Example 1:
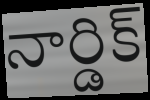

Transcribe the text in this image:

నార్డిక్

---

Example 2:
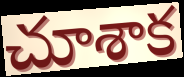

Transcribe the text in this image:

చూశాక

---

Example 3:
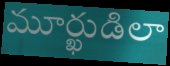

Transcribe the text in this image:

మూర్ఖుడిలా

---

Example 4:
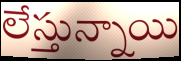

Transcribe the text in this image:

లేస్తున్నాయి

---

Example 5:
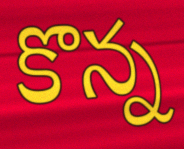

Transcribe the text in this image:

కొన్న